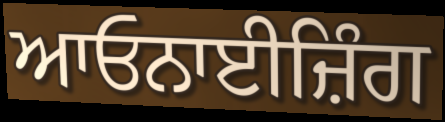
ਆਓਨਾਈਜ਼ਿੰਗ